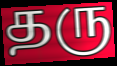
தரு